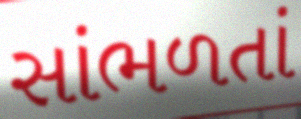
સાંભળતાં